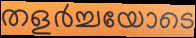
തളർച്ചയോടെ